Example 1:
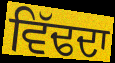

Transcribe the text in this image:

ਵਿੱਢਦਾ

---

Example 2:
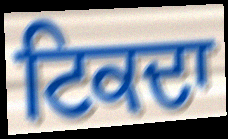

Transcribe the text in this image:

ਟਿਕਦਾ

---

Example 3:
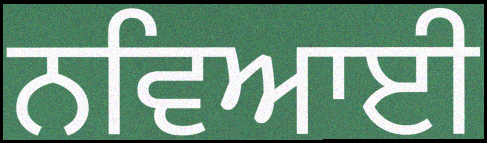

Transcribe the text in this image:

ਨਵਿਆਈ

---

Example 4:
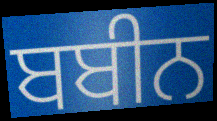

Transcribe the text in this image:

ਬਬੀਨ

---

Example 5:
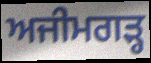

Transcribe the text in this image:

ਅਜੀਮਗੜ੍ਹ